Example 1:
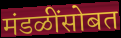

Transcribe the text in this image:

मंडळींसोबत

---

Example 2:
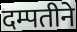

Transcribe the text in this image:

दम्पतीने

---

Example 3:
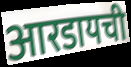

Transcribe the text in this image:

आरडायची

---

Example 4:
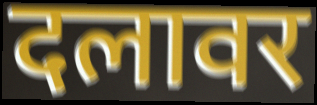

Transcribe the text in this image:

दलावर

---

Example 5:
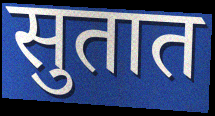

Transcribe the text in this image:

सुतात